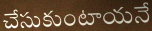
చేసుకుంటాయనే